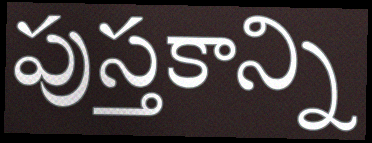
పుస్తకాన్ని